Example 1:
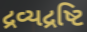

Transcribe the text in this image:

દ્રવ્યદ્રષ્ટિ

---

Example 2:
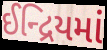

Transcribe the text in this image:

ઈન્દ્રિયમાં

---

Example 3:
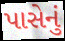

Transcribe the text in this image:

પાસેનું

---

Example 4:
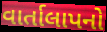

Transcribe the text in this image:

વાર્તાલાપનો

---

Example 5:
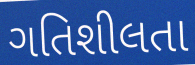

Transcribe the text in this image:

ગતિશીલતા